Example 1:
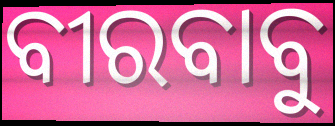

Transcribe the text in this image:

ବୀରବାବୁ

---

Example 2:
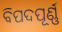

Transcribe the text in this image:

ବିପଦପୂର୍ଣ୍ଣ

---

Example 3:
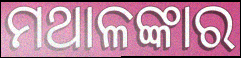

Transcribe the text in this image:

ମଥାଳଙ୍କାର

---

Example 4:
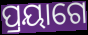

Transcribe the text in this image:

ପ୍ରୟାଗେ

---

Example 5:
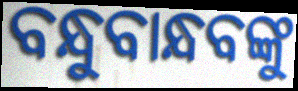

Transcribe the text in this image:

ବନ୍ଧୁବାନ୍ଧବଙ୍କୁ